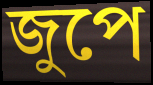
জুপে